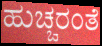
ಹುಚ್ಚರಂತೆ